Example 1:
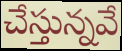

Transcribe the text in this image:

చేస్తున్నవే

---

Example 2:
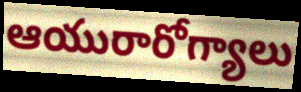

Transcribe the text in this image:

ఆయురారోగ్యాలు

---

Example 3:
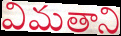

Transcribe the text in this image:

విమతాని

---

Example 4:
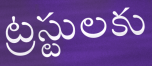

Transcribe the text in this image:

ట్రస్టులకు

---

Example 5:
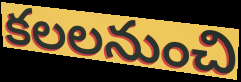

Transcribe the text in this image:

కలలనుంచి